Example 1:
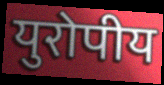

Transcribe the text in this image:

युरोपीय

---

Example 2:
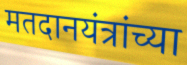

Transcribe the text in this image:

मतदानयंत्रांच्या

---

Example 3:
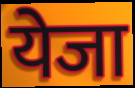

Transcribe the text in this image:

येजा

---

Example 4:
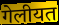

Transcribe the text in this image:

गेलीयत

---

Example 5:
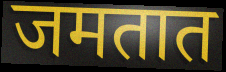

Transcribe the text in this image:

जमतात